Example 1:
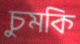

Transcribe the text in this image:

চুমকি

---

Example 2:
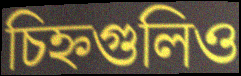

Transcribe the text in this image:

চিহ্নগুলিও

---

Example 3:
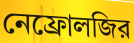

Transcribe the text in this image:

নেফ্রোলজির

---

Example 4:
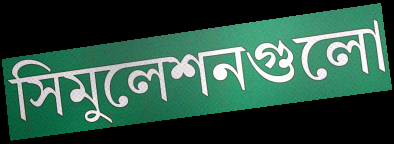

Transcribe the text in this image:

সিমুলেশনগুলো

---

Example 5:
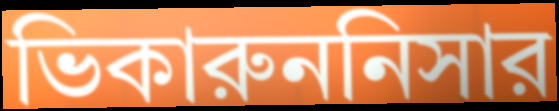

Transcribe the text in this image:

ভিকারুননিসার